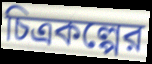
চিত্রকল্পের